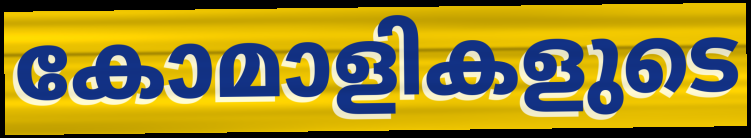
കോമാളികളുടെ